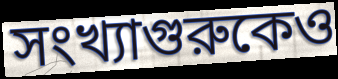
সংখ্যাগুরুকেও